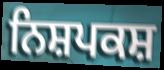
ਨਿਸ਼ਪਕਸ਼